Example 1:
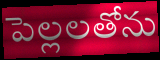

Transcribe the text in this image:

పెల్లలతోను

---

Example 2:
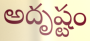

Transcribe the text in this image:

అదృష్టం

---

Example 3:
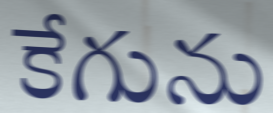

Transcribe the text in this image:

కేగును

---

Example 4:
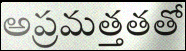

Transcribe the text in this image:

అప్రమత్తతతో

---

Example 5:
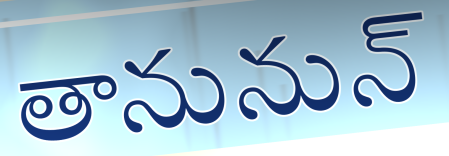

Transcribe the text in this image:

తానునున్